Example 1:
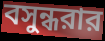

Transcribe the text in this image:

বসুন্ধরার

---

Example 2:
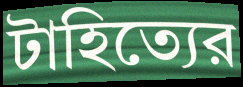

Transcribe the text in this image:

টাহিত্যের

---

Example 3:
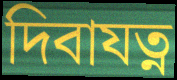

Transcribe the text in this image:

দিবাযত্ন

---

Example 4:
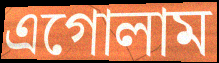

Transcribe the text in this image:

এগোলাম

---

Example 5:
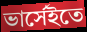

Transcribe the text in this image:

ভার্সেইতে